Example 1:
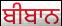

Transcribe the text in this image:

ਬੀਬਾਨ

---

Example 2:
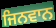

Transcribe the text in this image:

ਜਿਨਵਾਨ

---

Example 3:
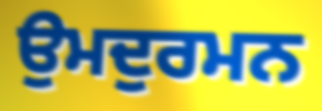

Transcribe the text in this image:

ਉਮਦੁਰਮਨ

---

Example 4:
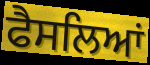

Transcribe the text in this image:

ਫੈਸਲਿਆਂ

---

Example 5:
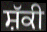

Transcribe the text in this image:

ਸ਼ੱਕੀ